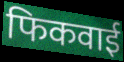
फिकवाई